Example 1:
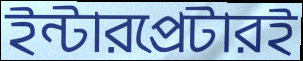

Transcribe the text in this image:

ইন্টারপ্রেটারই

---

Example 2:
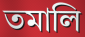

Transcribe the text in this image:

তমালি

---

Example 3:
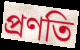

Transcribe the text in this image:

প্রণতি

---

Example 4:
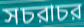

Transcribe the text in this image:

সচরাচর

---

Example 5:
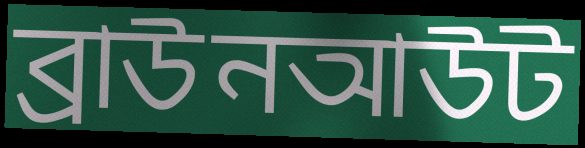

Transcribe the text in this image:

ব্রাউনআউট